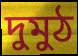
দুমুঠ